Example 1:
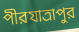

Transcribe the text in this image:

পীরযাত্রাপুর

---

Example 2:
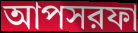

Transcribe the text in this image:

আপসরফা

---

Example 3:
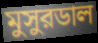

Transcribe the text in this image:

মুসুরডাল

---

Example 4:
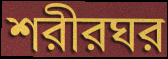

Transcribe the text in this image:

শরীরঘর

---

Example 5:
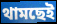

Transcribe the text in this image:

থামছেই